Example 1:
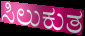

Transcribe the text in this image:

ಸಿಲುಕುತ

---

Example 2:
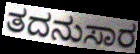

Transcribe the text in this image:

ತದನುಸಾರ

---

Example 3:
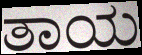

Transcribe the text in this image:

ತಾಯ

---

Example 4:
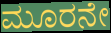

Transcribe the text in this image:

ಮೂರನೇ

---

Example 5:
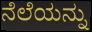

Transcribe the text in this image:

ನೆಲೆಯನ್ನು